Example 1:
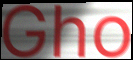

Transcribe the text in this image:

Gho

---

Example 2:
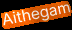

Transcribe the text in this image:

Aithegam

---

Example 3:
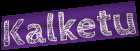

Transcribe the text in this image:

Kalketu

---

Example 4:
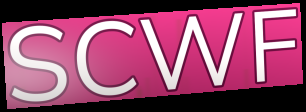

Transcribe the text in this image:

SCWF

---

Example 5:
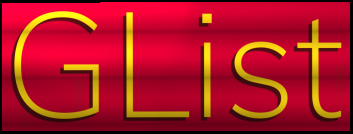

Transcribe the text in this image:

GList